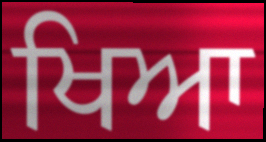
ਖਿਆ